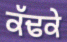
ਕੱਢਕੇ